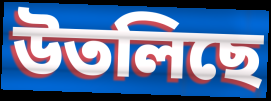
উতলিছে